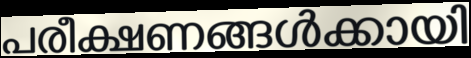
പരീക്ഷണങ്ങൾക്കായി